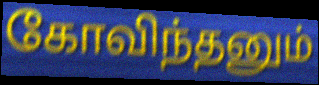
கோவிந்தனும்